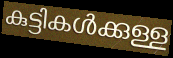
കുട്ടികൾക്കുള്ള